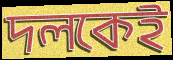
দলকেই